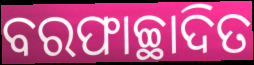
ବରଫାଚ୍ଛାଦିତ